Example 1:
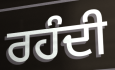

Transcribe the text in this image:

ਰਹੰਦੀ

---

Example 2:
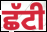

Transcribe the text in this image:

ਛੱਟੀ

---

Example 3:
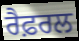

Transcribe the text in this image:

ਰੈਫ਼ਰਲ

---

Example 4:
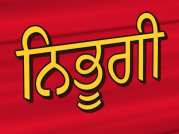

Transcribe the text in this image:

ਨਿਭੂਗੀ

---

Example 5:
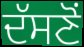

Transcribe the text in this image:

ਦੱਸਣੋਂ